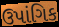
ઉપાંગિક